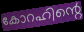
കോറഹിന്റെ